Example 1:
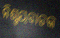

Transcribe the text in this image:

ନିଶ୍ଟୟବାଚକ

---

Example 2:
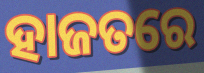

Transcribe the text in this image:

ହାଜତରେ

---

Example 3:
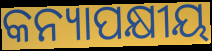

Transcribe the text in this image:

କନ୍ୟାପକ୍ଷୀୟ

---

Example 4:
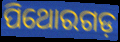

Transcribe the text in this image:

ପିଥୋରଗଡ଼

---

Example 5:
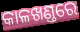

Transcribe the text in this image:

କାଳଖଣ୍ଡରେ